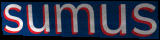
sumus